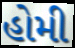
હોમી